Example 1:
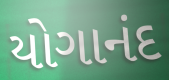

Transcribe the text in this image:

યોગાનંદ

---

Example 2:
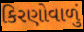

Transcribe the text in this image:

કિરણોવાળું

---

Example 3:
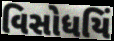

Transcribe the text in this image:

વિસોધયિં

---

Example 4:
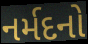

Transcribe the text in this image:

નર્મદનો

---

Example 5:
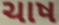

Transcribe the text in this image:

ચાષ